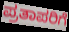
ಪ್ರತಾಪರಿಗೆ